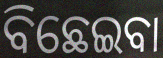
ବିଛେଇବା